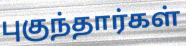
புகுந்தார்கள்